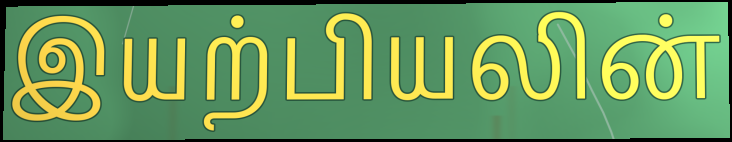
இயற்பியலின்